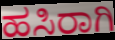
ಹಸಿರಾಗಿ